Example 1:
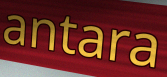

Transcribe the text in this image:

antara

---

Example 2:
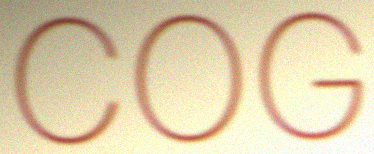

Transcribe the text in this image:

COG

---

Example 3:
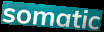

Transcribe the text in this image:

somatic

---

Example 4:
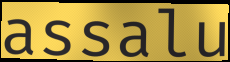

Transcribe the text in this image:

assalu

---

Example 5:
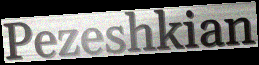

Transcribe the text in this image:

Pezeshkian